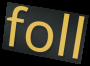
foll